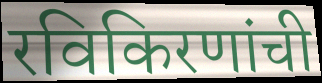
रविकिरणांची